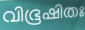
വിഭൂഷിതഃ